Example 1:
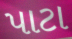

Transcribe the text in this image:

પાટા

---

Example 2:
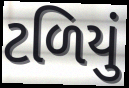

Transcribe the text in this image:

ટળિયું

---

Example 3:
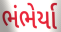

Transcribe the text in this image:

ભંભેર્યા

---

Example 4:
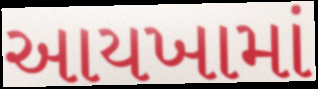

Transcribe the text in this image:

આયખામાં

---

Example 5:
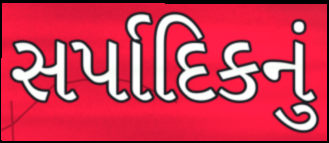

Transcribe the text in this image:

સર્પાદિકનું